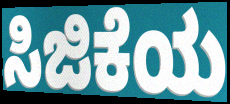
ಸಿಜಿಕೆಯ